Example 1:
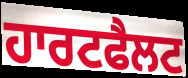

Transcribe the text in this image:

ਹਾਰਟਫੈਲਟ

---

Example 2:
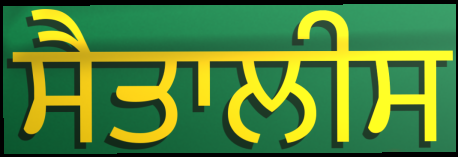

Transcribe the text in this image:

ਸੈਤਾਲੀਸ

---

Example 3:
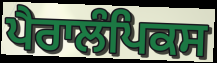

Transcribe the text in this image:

ਪੈਰਾਲੰਪਿਕਸ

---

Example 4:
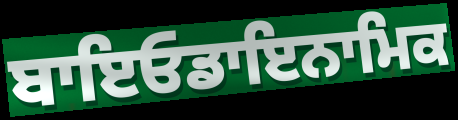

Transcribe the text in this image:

ਬਾਇਓਡਾਇਨਾਮਿਕ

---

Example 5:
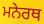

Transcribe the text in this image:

ਮਨੇਰਥ